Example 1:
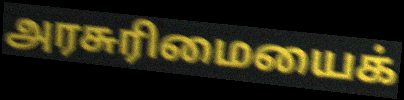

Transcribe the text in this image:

அரசுரிமையைக்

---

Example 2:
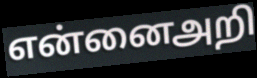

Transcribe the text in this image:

என்னைஅறி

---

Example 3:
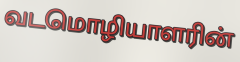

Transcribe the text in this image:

வடமொழியாளரின்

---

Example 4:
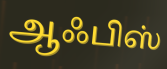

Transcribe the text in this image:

ஆஃபிஸ்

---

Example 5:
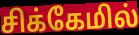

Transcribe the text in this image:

சிக்கேமில்